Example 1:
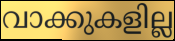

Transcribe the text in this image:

വാക്കുകളില്ല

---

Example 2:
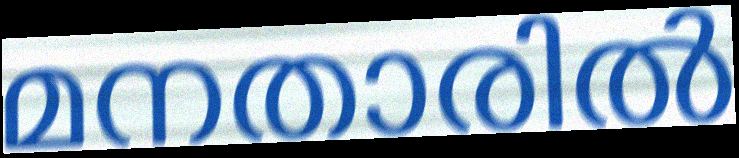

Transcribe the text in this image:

മനതാരിൽ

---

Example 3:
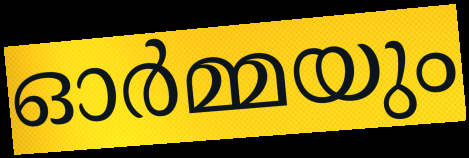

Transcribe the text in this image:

ഓർമ്മയും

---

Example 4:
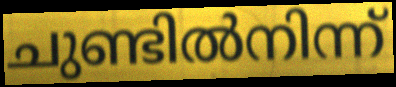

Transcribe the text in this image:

ചുണ്ടിൽനിന്ന്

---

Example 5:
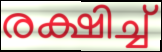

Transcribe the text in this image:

രക്ഷിച്ച്